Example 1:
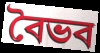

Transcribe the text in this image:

বৈভব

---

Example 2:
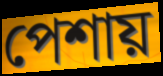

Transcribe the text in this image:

পেশায়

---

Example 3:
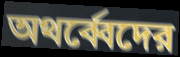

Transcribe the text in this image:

অথর্ব্বেদের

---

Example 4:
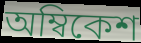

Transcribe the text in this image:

অম্বিকেশ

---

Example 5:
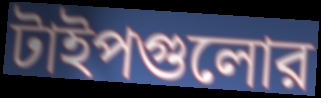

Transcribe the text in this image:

টাইপগুলোর